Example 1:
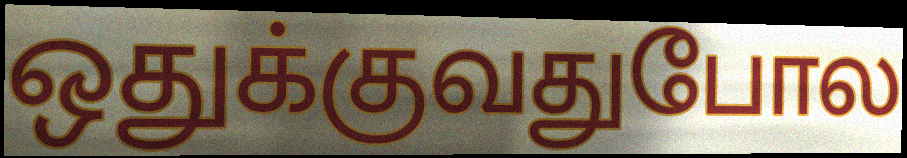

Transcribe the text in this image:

ஒதுக்குவதுபோல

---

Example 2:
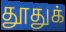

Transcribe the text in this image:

தூதுக்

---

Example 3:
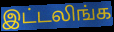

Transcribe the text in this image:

இட்டலிங்க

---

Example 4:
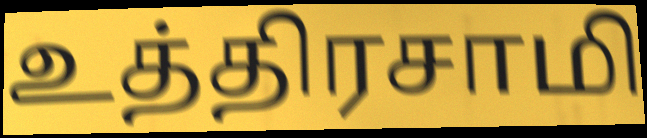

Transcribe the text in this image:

உத்திரசாமி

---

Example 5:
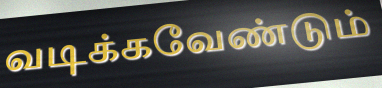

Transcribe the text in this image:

வடிக்கவேண்டும்